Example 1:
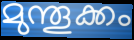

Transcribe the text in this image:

മുന്തൂക്കം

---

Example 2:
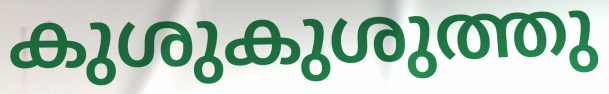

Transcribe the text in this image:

കുശുകുശുത്തു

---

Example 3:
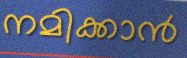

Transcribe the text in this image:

നമിക്കാൻ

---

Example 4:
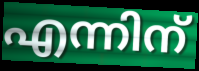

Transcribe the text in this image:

എന്നിന്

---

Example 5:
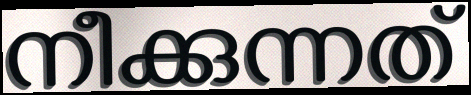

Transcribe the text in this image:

നീക്കുന്നത്